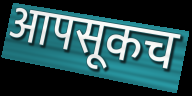
आपसूकच